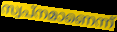
സ്വപ്നമാണെന്ന്